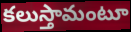
కలుస్తామంటూ